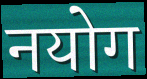
नयोग